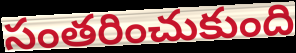
సంతరించుకుంది